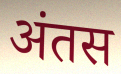
अंतस